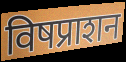
विषप्राशन